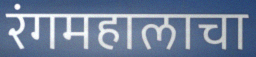
रंगमहालाचा